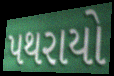
પથરાયો